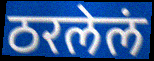
ठरलेलं